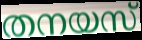
തനയസ്